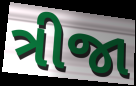
ત્રીજા